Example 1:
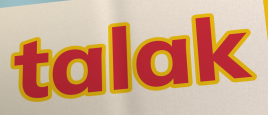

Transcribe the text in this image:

talak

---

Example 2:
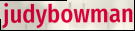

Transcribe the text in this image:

judybowman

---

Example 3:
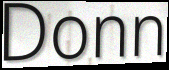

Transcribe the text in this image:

Donn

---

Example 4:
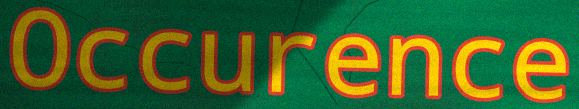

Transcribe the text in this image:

Occurence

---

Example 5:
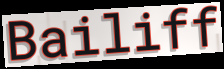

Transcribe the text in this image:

Bailiff